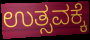
ಉತ್ಸವಕ್ಕೆ